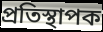
প্ৰতিস্থাপক